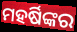
ମହର୍ଷିଙ୍କର